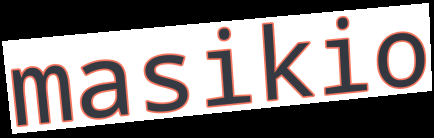
masikio